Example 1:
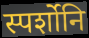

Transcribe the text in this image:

स्पर्शोनि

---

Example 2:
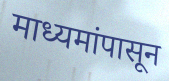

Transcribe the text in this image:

माध्यमांपासून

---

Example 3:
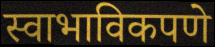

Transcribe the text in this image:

स्वाभाविकपणे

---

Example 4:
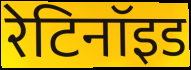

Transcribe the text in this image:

रेटिनॉइड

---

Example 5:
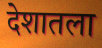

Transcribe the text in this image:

देशातला